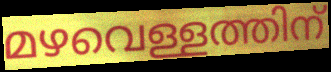
മഴവെള്ളത്തിന്